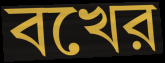
বখের